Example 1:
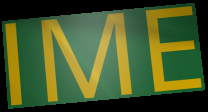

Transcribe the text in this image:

IME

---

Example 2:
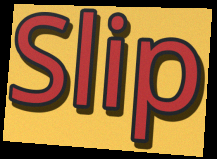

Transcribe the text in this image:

Slip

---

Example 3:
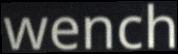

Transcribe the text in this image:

wench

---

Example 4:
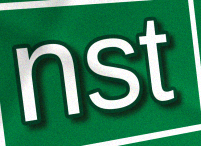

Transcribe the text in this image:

nst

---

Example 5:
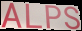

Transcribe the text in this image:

ALPS